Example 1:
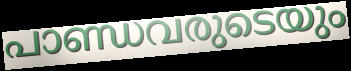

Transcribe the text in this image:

പാണ്ഡവരുടെയും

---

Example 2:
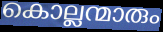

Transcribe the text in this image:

കൊല്ലന്മാരും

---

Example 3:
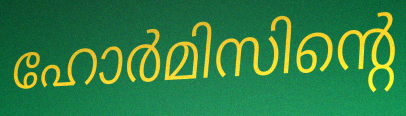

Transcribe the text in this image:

ഹോർമിസിന്റെ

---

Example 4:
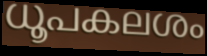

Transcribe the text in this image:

ധൂപകലശം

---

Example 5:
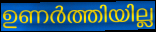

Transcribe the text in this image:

ഉണർത്തിയില്ല